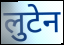
लुटेन